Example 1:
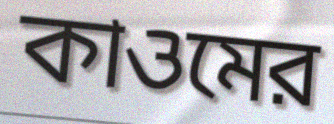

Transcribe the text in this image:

কাওমের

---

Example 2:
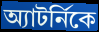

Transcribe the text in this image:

অ্যাটর্নিকে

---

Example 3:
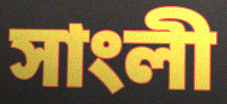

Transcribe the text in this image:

সাংলী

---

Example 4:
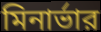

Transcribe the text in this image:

মিনার্ভার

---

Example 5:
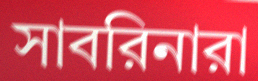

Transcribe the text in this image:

সাবরিনারা